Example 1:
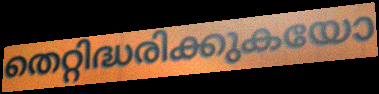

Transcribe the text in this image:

തെറ്റിദ്ധരിക്കുകയോ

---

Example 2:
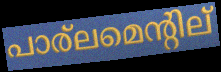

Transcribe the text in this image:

പാര്ലമെന്റില്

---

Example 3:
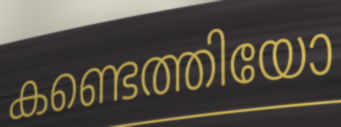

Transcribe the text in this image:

കണ്ടെത്തിയോ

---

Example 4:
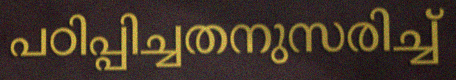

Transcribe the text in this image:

പഠിപ്പിച്ചതനുസരിച്ച്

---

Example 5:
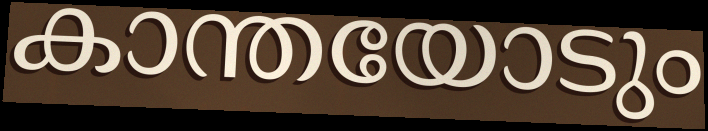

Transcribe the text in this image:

കാന്തയോടും